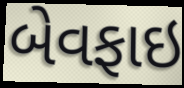
બેવફાઇ